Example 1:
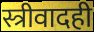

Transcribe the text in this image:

स्त्रीवादही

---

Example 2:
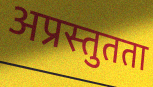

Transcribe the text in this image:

अप्रस्तुतता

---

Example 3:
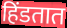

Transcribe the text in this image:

हिंडतात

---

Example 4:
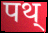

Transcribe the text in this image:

पथ्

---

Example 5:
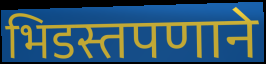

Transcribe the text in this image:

भिडस्तपणाने